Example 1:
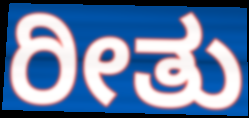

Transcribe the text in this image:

ರೀತು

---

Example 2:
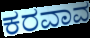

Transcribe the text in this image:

ಕರವಾವ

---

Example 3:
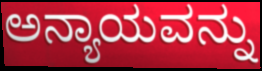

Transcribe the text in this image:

ಅನ್ಯಾಯವನ್ನು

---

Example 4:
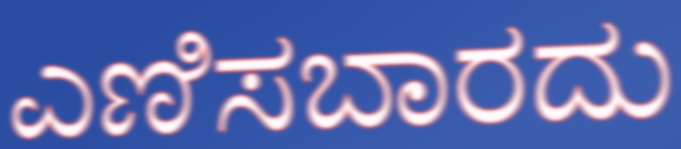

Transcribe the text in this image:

ಎಣಿಸಬಾರದು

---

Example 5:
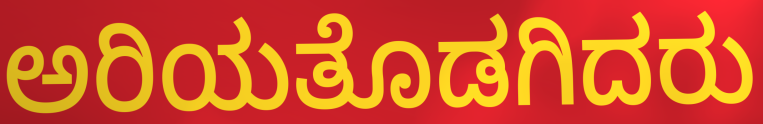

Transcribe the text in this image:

ಅರಿಯತೊಡಗಿದರು